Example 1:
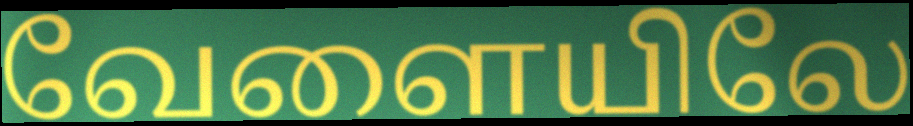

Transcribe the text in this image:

வேளையிலே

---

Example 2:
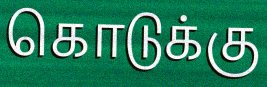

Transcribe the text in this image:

கொடுக்கு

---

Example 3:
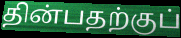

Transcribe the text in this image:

தின்பதற்குப்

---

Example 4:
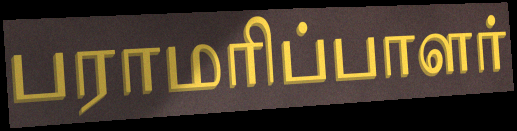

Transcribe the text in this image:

பராமரிப்பாளர்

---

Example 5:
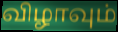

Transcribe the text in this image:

விழாவும்